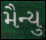
મૈન્યુ